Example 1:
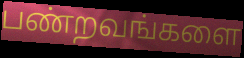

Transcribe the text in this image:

பண்றவங்களை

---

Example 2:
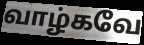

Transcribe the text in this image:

வாழ்கவே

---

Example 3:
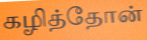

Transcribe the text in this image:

கழித்தோன்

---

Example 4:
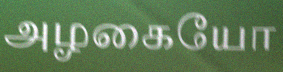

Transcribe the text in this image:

அழகையோ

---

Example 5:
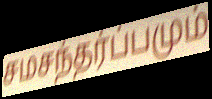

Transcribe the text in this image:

சமசந்தர்ப்பமும்